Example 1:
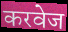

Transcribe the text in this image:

करवेज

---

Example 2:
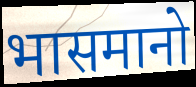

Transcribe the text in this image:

भासमानो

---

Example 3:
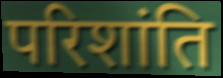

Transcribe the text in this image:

परिशांति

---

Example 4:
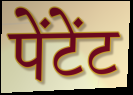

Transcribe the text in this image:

पेंटेंट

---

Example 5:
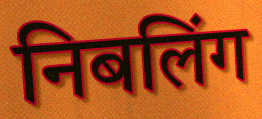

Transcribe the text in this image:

निबलिंग